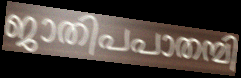
ജാതിപപാതമ്പി